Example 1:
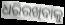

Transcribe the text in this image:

ଧରିରଖିବାକୁ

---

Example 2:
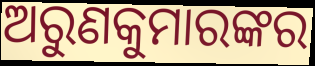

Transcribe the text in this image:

ଅରୁଣକୁମାରଙ୍କର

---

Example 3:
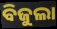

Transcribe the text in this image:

ବିଜୁଲା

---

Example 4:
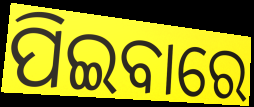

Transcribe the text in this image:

ପିଇବାରେ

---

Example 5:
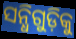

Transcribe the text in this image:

ସନ୍ଧିଗୁଡ଼ିକୁ